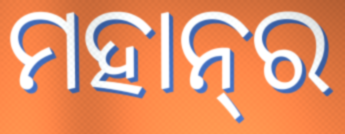
ମହାନ୍‌ର